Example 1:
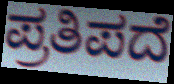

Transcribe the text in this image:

ಪ್ರತಿಪದೆ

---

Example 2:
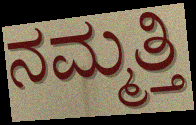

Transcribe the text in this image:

ನಮ್ಮತ್ತಿ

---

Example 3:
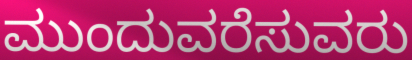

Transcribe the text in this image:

ಮುಂದುವರೆಸುವರು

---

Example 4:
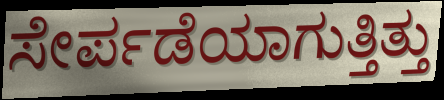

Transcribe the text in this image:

ಸೇರ್ಪಡೆಯಾಗುತ್ತಿತ್ತು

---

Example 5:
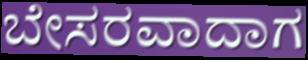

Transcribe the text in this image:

ಬೇಸರವಾದಾಗ